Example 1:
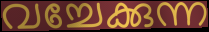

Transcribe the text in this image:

വച്ചേക്കുന്ന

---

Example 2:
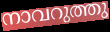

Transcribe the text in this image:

നാവറുത്തു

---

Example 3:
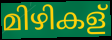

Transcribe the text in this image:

മിഴികള്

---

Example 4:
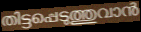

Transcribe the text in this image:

തിട്ടപ്പെടുത്തുവാൻ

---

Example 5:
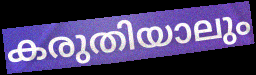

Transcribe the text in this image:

കരുതിയാലും